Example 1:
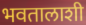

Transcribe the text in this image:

भवतालाशी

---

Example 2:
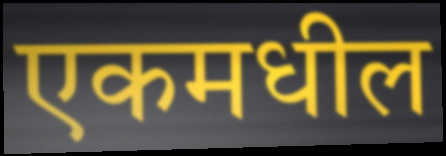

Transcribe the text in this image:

एकमधील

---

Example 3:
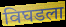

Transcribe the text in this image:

विघडला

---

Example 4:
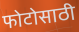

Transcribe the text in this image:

फोटोसाठी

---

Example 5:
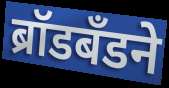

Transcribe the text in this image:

ब्रॉडबँडने